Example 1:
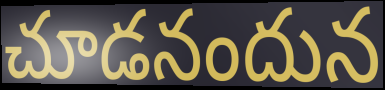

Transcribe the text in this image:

చూడనందున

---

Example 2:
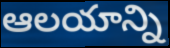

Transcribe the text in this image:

ఆలయాన్ని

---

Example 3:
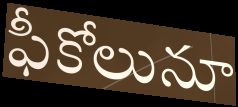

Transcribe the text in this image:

ఫీకోలునూ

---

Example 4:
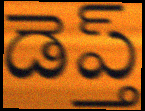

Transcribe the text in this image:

డెప్త్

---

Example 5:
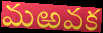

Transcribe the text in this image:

మఱవక